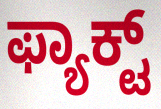
ಫ್ಯಾಕ್ಟ್